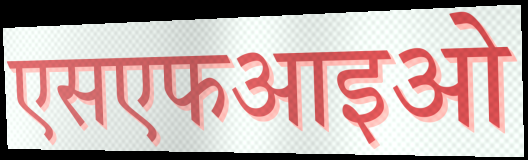
एसएफआइओ